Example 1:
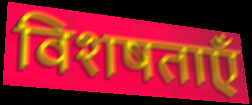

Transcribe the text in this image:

विशषताएँ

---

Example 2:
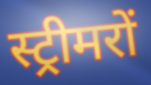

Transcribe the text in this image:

स्ट्रीमरों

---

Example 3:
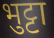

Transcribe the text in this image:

भुट्टा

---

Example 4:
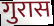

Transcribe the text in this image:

गुरास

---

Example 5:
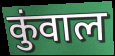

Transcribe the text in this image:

कुंवाल